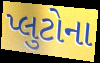
પ્લુટોના